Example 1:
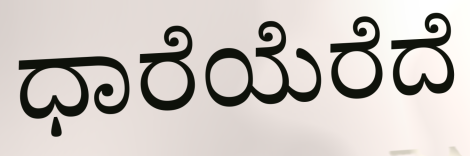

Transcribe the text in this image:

ಧಾರೆಯೆರೆದೆ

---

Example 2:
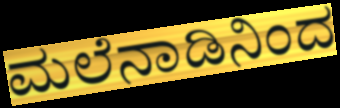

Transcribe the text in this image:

ಮಲೆನಾಡಿನಿಂದ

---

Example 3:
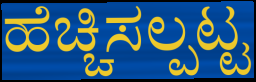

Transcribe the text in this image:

ಹೆಚ್ಚಿಸಲ್ಪಟ್ಟ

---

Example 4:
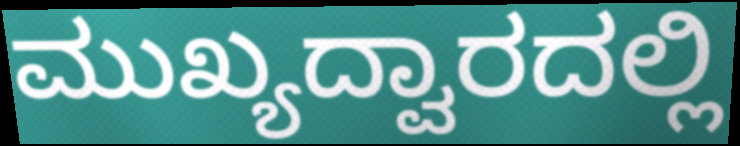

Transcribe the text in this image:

ಮುಖ್ಯದ್ವಾರದಲ್ಲಿ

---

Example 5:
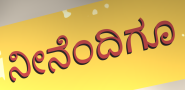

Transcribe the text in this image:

ನೀನೆಂದಿಗೂ